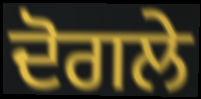
ਦੋਗਲੇ